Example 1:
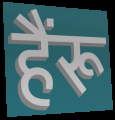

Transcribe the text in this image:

हैंरू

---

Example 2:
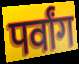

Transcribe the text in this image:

पर्वांग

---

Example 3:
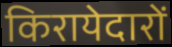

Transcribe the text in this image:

किरायेदारों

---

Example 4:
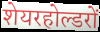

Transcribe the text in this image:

शेयरहोल्डरों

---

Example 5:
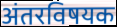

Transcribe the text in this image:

अंतरविषयक